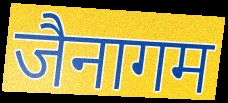
जैनागम